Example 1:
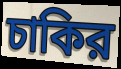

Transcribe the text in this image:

চাকির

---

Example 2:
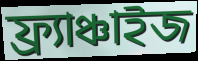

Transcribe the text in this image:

ফ্র্যাঞ্চাইজ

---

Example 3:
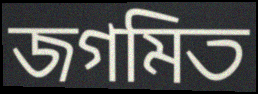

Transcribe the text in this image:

জগমিত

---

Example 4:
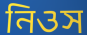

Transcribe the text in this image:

নিওস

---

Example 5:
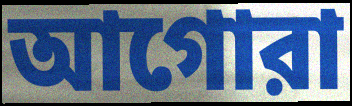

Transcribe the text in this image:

আগোরা